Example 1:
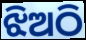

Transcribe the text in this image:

ଝିଅଠି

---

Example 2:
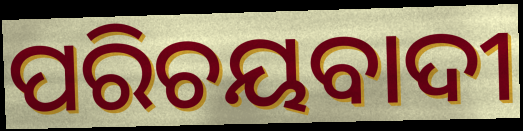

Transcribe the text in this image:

ପରିଚୟବାଦୀ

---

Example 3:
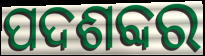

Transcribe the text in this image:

ପଦଶବ୍ଦର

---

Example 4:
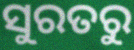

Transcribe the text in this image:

ସୁରତରୁ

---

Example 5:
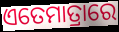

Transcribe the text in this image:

ଏତେମାତ୍ରାରେ